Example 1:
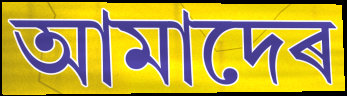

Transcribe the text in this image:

আমাদেৰ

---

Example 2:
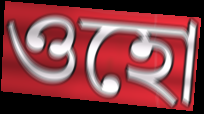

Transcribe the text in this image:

ওহো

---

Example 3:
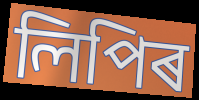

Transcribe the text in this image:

লিপিৰ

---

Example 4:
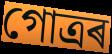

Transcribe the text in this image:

গোত্ৰৰ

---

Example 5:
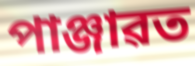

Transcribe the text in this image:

পাঞ্জাৱত